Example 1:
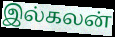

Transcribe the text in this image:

இல்கலன்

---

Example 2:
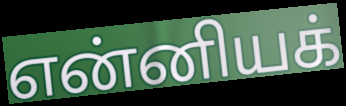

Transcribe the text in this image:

என்னியக்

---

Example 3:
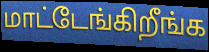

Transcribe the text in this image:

மாட்டேங்கிறீங்க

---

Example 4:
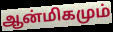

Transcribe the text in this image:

ஆன்மிகமும்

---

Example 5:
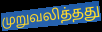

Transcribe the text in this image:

முறுவலித்தது